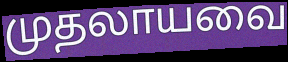
முதலாயவை